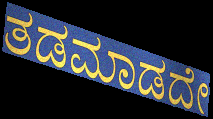
ತಡಮಾಡದೇ